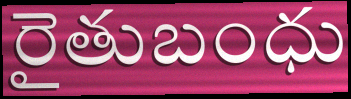
రైతుబంధు